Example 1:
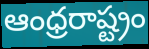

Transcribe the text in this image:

ఆంధ్రరాష్ట్రం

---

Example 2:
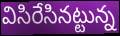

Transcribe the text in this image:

విసిరేసినట్టున్న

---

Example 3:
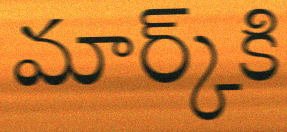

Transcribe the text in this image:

మార్క్‌కి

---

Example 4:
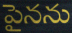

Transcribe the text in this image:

పైనను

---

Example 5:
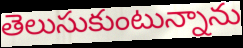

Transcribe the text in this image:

తెలుసుకుంటున్నాను